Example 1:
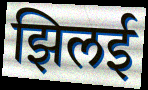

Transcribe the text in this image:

झिलई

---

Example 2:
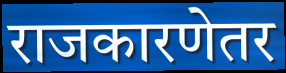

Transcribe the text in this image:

राजकारणेतर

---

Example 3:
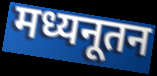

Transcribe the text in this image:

मध्यनूतन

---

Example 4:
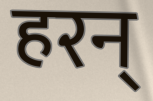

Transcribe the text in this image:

हरन्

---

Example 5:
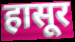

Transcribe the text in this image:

हासूर